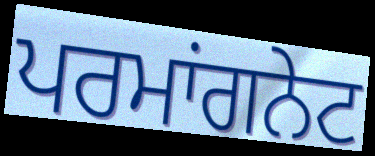
ਪਰਮਾਂਗਨੇਟ